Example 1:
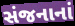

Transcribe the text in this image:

સંજનાનાં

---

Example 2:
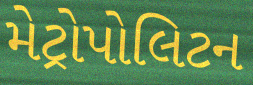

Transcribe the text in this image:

મેટ્રોપોલિટન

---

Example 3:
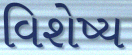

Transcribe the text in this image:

વિશેષ્ય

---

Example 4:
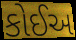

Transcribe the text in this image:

કોઈઅ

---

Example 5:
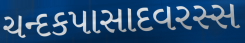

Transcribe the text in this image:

ચન્દકપાસાદવરસ્સ